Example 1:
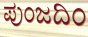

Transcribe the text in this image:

ಪುಂಜದಿಂ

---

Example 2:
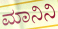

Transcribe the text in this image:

ಮಾನಿನಿ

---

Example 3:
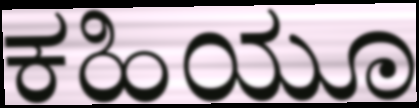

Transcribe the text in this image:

ಕಹಿಯೂ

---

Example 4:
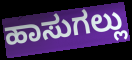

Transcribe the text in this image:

ಹಾಸುಗಲ್ಲು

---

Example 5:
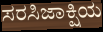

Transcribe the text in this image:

ಸರಸಿಜಾಕ್ಷಿಯ